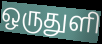
ஒருதுளி